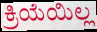
ಕ್ರಿಯೆಯಿಲ್ಲ